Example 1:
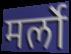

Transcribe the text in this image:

मर्लो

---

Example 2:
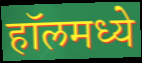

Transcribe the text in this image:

हॉलमध्ये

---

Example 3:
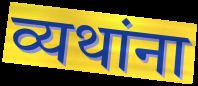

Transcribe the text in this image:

व्यथांना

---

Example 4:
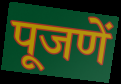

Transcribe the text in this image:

पूजणें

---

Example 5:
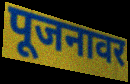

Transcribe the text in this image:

पूजनावर